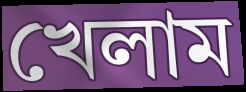
খেলাম